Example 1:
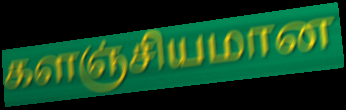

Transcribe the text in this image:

களஞ்சியமான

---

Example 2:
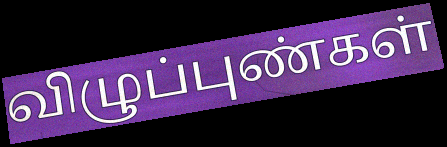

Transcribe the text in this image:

விழுப்புண்கள்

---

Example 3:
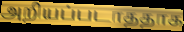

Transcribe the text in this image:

அறியப்படாததாக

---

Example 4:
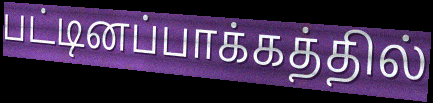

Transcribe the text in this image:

பட்டினப்பாக்கத்தில்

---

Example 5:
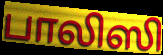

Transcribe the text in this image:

பாலிஸி